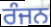
ਰੰਜਨ